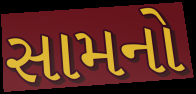
સામનો